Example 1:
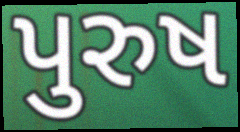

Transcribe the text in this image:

પુરુષ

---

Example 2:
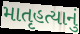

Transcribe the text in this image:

માતૃહત્યાનું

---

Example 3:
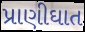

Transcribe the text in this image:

પ્રાણીઘાત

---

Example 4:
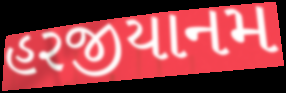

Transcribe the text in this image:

હરજીયાનમ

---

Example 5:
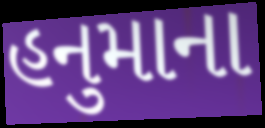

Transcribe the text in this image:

હનુમાના